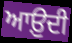
ਆਉ਼ਦੀ